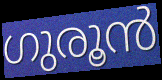
ഗുരൂൻ